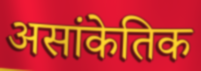
असांकेतिक